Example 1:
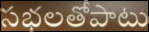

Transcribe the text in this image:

సభలతోపాటు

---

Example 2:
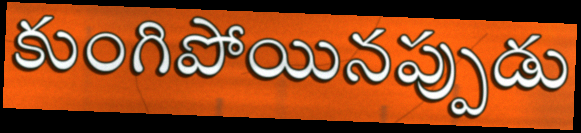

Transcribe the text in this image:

కుంగిపోయినప్పుడు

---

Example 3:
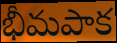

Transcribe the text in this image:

భీమపాక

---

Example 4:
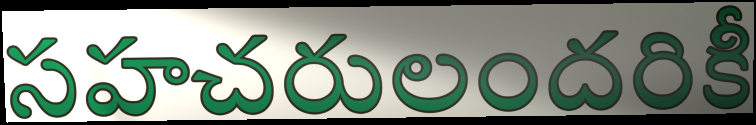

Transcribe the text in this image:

సహచరులందరికీ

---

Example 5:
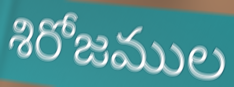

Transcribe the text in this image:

శిరోజముల